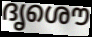
ദൃശൌ